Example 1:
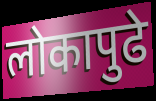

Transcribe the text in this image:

लोकापुढे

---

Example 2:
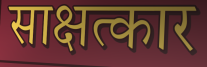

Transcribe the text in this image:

साक्षत्कार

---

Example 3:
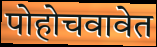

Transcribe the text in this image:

पोहोचवावेत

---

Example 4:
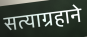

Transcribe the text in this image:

सत्याग्रहाने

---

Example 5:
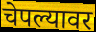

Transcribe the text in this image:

चेपल्यावर